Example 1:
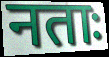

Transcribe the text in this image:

नताः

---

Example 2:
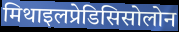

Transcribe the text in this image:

मिथाइलप्रेडिसिसोलोन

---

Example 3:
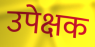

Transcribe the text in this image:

उपेक्षक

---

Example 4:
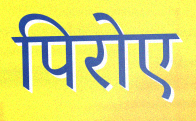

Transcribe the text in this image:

पिरोए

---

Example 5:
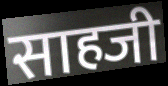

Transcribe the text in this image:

साहजी